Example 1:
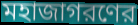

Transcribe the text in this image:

মহাজাগরণের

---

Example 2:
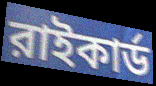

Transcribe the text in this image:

রাইকার্ড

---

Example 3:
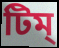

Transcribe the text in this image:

টিম্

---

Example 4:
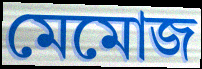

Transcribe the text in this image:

মেমোজ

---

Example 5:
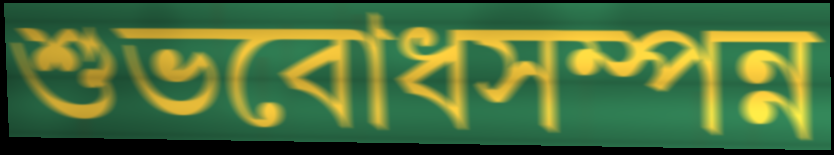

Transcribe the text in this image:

শুভবোধসম্পন্ন